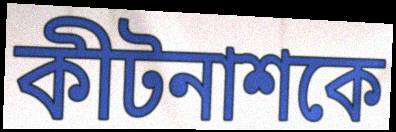
কীটনাশকে